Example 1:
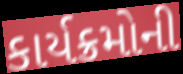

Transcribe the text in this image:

કાર્યક્રમોની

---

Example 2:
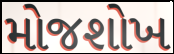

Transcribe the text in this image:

મોજશોખ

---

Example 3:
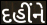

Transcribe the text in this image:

દહીંને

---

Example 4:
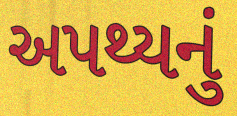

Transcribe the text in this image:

અપથ્યનું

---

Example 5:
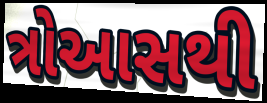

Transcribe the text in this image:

ત્રોઆસથી